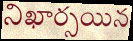
నిఖార్సయిన